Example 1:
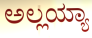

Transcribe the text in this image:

ಅಲ್ಲಯ್ಯಾ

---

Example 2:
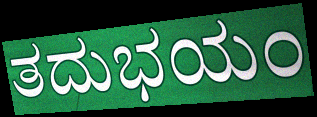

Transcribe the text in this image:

ತದುಭಯಂ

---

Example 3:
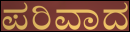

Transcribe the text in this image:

ಪರಿವಾದ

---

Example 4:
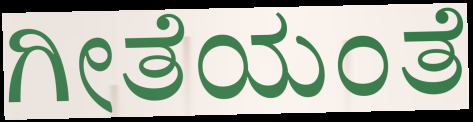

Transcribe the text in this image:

ಗೀತೆಯಂತೆ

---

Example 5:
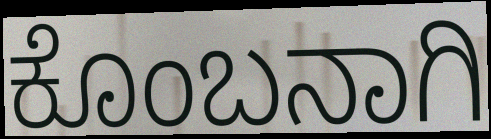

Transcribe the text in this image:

ಕೊಂಬನಾಗಿ